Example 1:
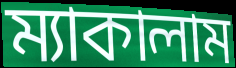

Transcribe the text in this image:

ম্যাকালাম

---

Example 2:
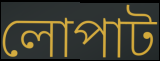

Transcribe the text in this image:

লোপাট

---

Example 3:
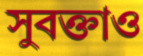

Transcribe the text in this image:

সুবক্তাও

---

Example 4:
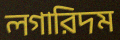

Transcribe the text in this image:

লগারিদম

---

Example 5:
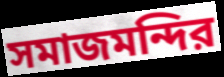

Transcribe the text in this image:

সমাজমন্দির